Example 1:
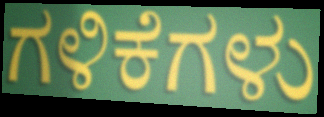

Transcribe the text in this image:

ಗಳಿಕೆಗಳು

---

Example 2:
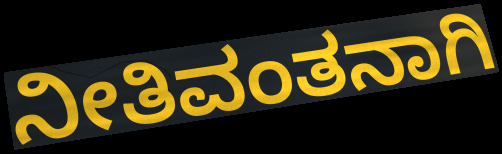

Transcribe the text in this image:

ನೀತಿವಂತನಾಗಿ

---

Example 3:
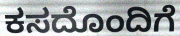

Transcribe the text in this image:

ಕಸದೊಂದಿಗೆ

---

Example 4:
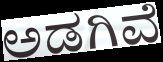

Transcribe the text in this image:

ಅಡಗಿವೆ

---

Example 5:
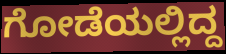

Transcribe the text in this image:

ಗೋಡೆಯಲ್ಲಿದ್ದ